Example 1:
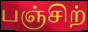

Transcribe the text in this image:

பஞ்சிற்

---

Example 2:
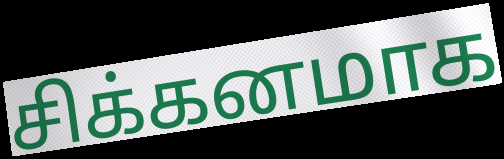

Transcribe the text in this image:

சிக்கனமாக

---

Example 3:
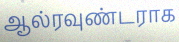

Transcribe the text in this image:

ஆல்ரவுண்டராக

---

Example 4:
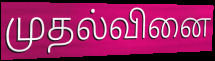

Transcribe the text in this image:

முதல்வினை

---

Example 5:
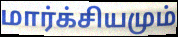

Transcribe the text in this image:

மார்க்சியமும்